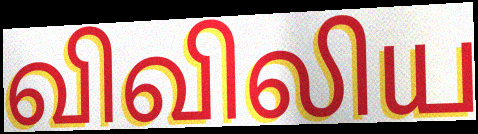
விவிலிய